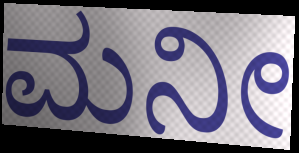
ಮನೀ